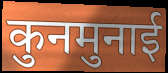
कुनमुनाई